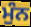
ਮੁੰਨ